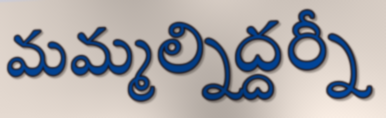
మమ్మల్నిద్దర్నీ